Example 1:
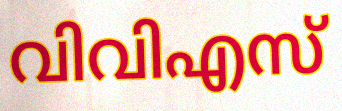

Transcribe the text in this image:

വിവിഎസ്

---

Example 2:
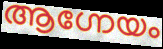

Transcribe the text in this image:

ആഗ്നേയം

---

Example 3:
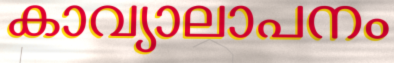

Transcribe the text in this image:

കാവ്യാലാപനം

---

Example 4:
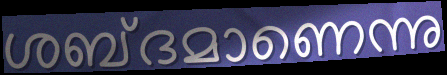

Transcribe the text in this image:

ശബ്ദമാണെന്നു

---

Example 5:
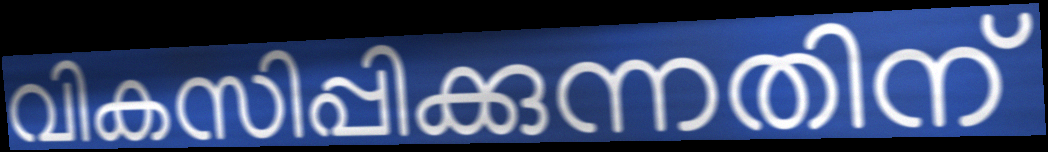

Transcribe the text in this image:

വികസിപ്പിക്കുന്നതിന്